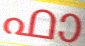
ഫാ